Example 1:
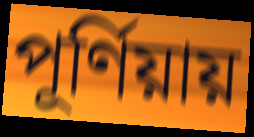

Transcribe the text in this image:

পূর্ণিয়ায়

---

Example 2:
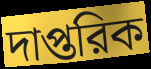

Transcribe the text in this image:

দাপ্তরিক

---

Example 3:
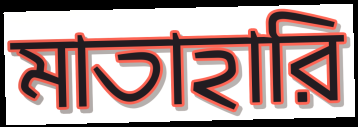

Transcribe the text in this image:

মাতাহারি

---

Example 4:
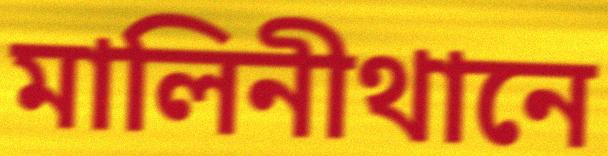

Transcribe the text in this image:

মালিনীথানে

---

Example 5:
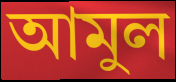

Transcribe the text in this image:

আমুল